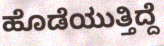
ಹೊಡೆಯುತ್ತಿದ್ದೆ